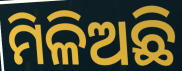
ମିଳିଅଛି